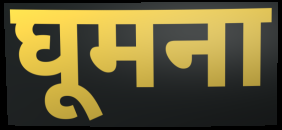
घूमना